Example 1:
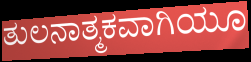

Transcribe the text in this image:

ತುಲನಾತ್ಮಕವಾಗಿಯೂ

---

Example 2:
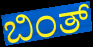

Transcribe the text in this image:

ಬಿಂತ್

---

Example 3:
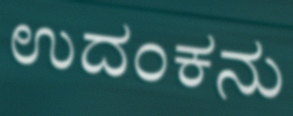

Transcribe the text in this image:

ಉದಂಕನು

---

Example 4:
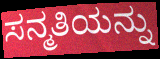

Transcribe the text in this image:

ಸನ್ಮತಿಯನ್ನು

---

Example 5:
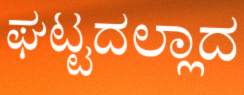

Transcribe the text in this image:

ಘಟ್ಟದಲ್ಲಾದ